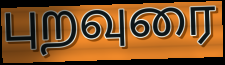
புறவுரை